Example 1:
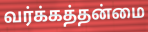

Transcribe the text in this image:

வர்க்கத்தன்மை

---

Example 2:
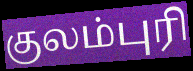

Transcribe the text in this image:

குலம்புரி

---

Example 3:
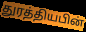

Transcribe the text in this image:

துரத்தியபின்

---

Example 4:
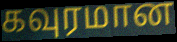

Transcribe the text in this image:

கவுரமான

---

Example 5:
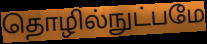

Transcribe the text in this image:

தொழில்நுட்பமே